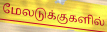
மேலடுக்குகளில்